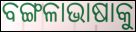
ବଙ୍ଗଳାଭାଷାକୁ